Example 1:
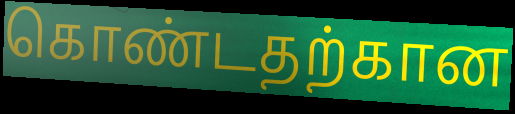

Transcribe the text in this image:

கொண்டதற்கான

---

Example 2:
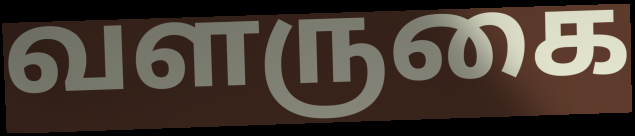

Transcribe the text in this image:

வளருகை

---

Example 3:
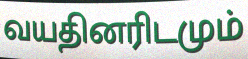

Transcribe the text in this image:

வயதினரிடமும்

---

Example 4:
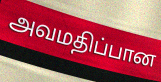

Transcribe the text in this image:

அவமதிப்பான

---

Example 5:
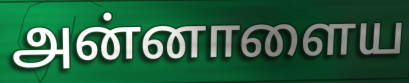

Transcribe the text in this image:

அன்னாளைய